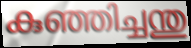
കുഞ്ഞിച്ചന്തു